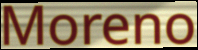
Moreno